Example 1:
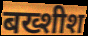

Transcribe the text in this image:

बख्शीश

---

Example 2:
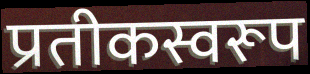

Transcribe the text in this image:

प्रतीकस्वरूप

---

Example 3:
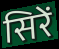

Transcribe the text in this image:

सिरें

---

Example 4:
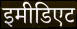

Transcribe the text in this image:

इमीडिएट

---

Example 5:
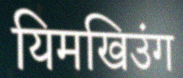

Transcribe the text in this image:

यिमखिउंग